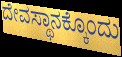
ದೇವಸ್ಥಾನಕ್ಕೊಂದು